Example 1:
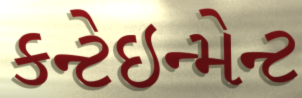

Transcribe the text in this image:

કન્ટેઇન્મેન્ટ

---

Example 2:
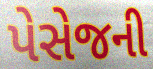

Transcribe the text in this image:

પેસેજની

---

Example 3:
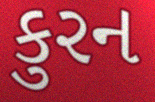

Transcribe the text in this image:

કુરન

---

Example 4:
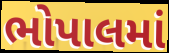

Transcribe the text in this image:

ભોપાલમાં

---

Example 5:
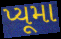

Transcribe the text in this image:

પ્યૂમા